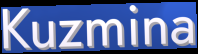
Kuzmina